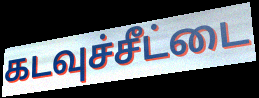
கடவுச்சீட்டை